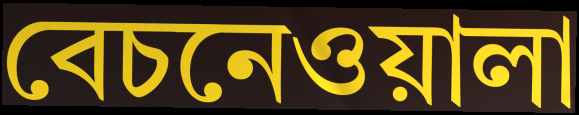
বেচনেওয়ালা